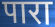
पारा